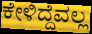
ಕೇಳಿದ್ದೆವಲ್ಲ